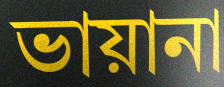
ভায়ানা